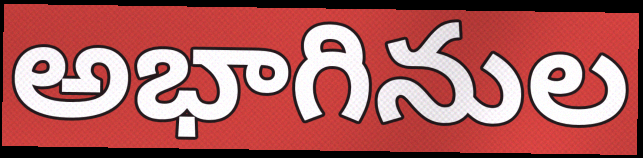
అభాగినుల